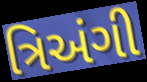
ત્રિઅંગી